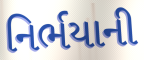
નિર્ભયાની